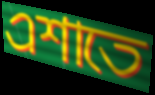
এশাতে